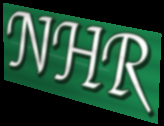
NHR